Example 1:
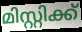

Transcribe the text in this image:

മിസ്റ്റിക്ക്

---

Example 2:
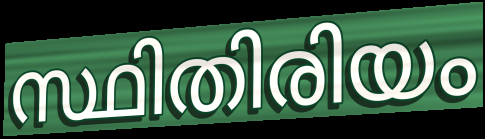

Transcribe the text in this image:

സ്ഥിതിരിയം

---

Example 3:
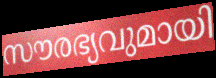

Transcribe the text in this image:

സൗരഭ്യവുമായി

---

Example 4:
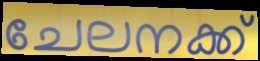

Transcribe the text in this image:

ചേലനക്ക്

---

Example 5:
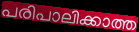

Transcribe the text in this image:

പരിപാലിക്കാത്ത